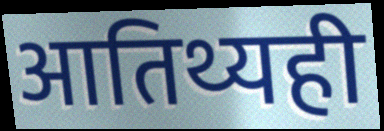
आतिथ्यही